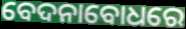
ବେଦନାବୋଧରେ